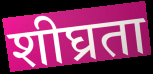
शीघ्रता